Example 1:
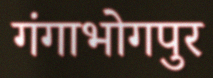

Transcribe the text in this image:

गंगाभोगपुर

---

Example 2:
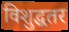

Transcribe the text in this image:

विशुद्धतर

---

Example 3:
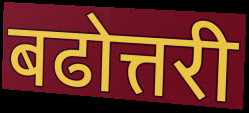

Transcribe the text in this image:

बढोत्तरी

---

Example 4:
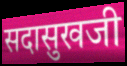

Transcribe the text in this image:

सदासुखजी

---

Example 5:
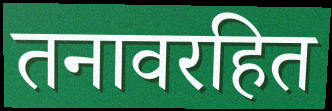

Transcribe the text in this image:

तनावरहित